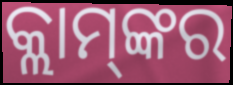
କ୍ଲାମ୍‌ଙ୍କର